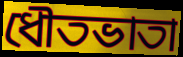
ধৌতভাতা